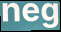
neg